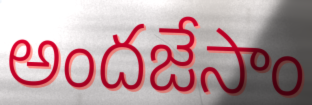
అందజేసాం